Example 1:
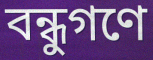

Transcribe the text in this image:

বন্ধুগণে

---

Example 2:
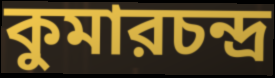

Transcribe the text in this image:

কুমারচন্দ্র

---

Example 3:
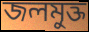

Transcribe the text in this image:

জলমুক্ত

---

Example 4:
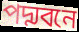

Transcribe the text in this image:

পদ্মবনে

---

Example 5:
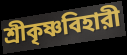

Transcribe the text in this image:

শ্রীকৃষ্ণবিহারী